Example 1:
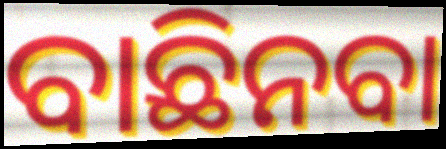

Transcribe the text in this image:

ବାଛିନବା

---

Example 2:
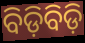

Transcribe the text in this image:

ବିଡ଼ିବିଡ଼ି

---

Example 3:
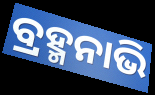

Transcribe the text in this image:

ବ୍ରହ୍ମନାଭି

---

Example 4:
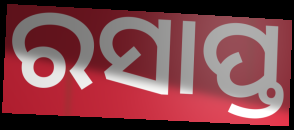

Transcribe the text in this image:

ରସାପ୍ତ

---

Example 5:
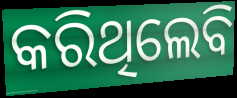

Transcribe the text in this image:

କରିଥିଲେବି